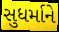
સુધર્માને